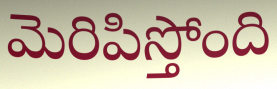
మెరిపిస్తోంది